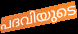
പദവിയുടെ